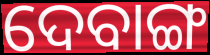
ଦେବାଙ୍ଗ